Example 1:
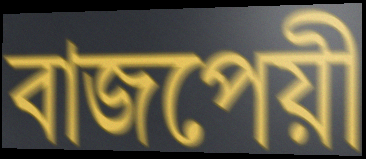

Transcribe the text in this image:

বাজপেয়ী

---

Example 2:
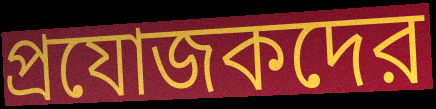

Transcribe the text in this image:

প্রযোজকদের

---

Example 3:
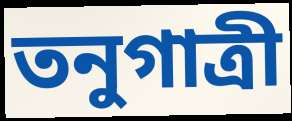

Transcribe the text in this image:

তনুগাত্রী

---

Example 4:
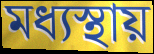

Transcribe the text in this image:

মধ্যস্থায়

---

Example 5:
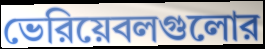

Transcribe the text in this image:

ভেরিয়েবলগুলোর